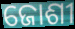
ଜୋଶୀ